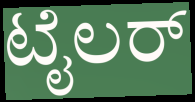
ಟೈಲರ್